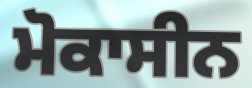
ਮੋਕਾਸੀਨ